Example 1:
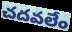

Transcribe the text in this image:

చదవలేం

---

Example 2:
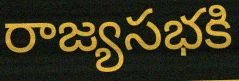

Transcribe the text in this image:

రాజ్యసభకి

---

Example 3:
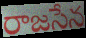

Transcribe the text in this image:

రాజసేన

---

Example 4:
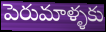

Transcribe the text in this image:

పెరుమాళ్ళకు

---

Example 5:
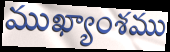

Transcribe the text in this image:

ముఖ్యాంశము